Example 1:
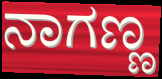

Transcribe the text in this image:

ನಾಗಣ್ಣ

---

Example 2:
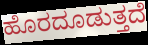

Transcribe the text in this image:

ಹೊರದೂಡುತ್ತದೆ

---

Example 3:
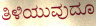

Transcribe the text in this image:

ತಿಳಿಯುವುದೂ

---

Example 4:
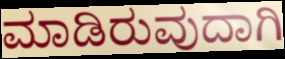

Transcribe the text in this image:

ಮಾಡಿರುವುದಾಗಿ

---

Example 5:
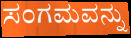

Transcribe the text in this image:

ಸಂಗಮವನ್ನು